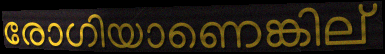
രോഗിയാണെങ്കില്